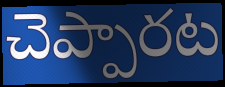
చెప్పారట